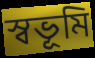
স্বভূমি